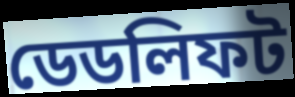
ডেডলিফট